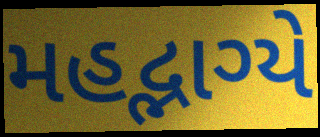
મહદ્ભાગ્યે